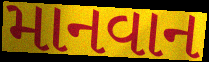
માનવાન